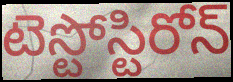
టెస్టోస్టిరోన్